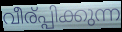
വീര്പ്പിക്കുന്ന